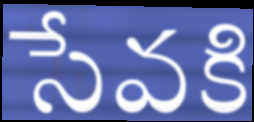
సేవకి